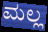
ಮಲ್ಲ